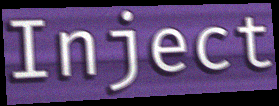
Inject